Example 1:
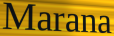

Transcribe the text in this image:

Marana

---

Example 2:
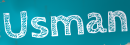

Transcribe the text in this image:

Usman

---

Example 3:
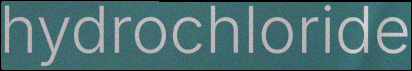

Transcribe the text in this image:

hydrochloride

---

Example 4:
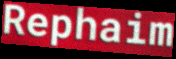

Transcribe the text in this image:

Rephaim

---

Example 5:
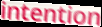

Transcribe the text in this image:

intention